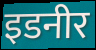
इडनीर